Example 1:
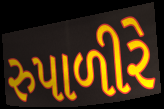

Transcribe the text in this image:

રુપાળીરે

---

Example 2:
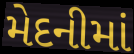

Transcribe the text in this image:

મેદનીમાં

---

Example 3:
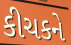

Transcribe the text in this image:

કીચકને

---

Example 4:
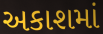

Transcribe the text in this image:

અકાશમાં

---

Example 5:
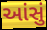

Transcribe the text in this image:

આંસું